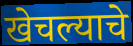
खेचल्याचे